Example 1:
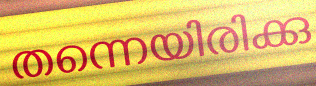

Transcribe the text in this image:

തന്നെയിരിക്കു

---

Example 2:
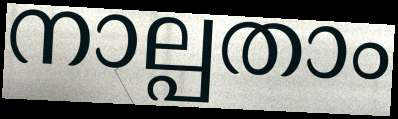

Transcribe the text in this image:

നാല്പതാം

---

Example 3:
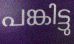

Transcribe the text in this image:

പങ്കിട്ടു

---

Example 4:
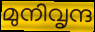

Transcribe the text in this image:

മുനിവൃന്ദ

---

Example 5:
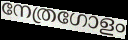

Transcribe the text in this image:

നേത്രഗോളം